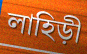
লাহিড়ী